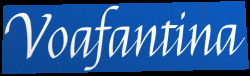
Voafantina